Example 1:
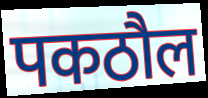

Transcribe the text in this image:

पकठौल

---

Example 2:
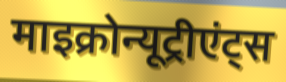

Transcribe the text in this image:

माइक्रोन्यूट्रीएंट्स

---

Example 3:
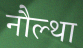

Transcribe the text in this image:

नौल्था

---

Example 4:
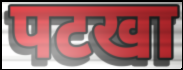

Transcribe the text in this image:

पटखा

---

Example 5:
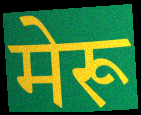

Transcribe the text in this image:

मेरू